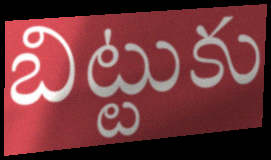
బిట్టుకు